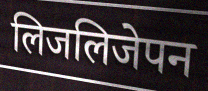
लिजलिजेपन